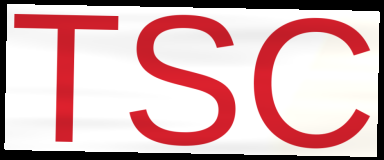
TSC